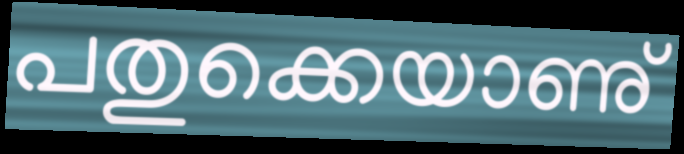
പതുക്കെയാണു്